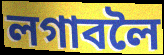
লগাবলৈ